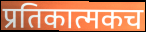
प्रतिकात्मकच